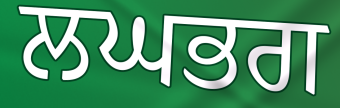
ਲਘਭਗ